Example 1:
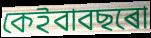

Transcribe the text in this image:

কেইবাবছৰো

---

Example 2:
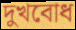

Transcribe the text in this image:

দুখবোধ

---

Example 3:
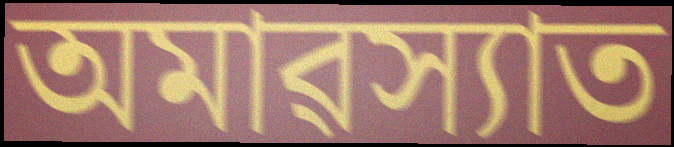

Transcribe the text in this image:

অমাৱস্যাত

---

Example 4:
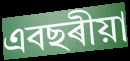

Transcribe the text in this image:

এবছৰীয়া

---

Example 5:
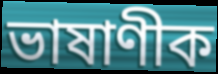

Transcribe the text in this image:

ভাষাণীক